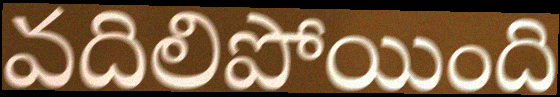
వదిలిపోయింది